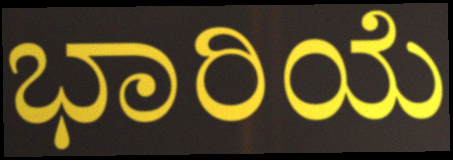
ಭಾರಿಯೆ